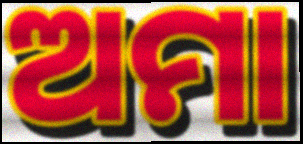
ଅମା